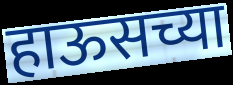
हाऊसच्या